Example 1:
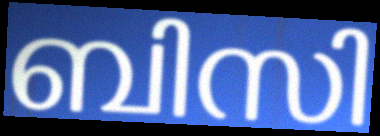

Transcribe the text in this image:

ബിസി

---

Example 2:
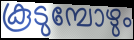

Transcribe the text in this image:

കൂടുമ്പോഴും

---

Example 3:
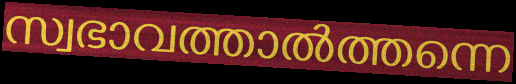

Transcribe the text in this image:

സ്വഭാവത്താൽത്തന്നെ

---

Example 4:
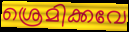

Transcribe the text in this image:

ശ്രെമിക്കവേ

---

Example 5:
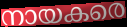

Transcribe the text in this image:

നായകരെ